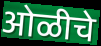
ओळीचे